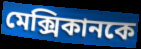
মেক্সিকানকে